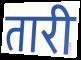
तारी